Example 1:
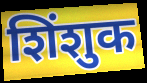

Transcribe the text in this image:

शिंशुक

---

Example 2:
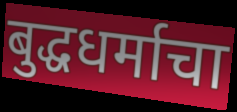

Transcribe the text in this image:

बुद्धधर्माचा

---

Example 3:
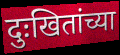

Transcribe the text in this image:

दुःखितांच्या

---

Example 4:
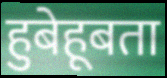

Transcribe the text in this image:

हुबेहूबता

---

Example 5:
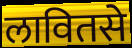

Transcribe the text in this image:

लावितसे